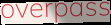
overpass